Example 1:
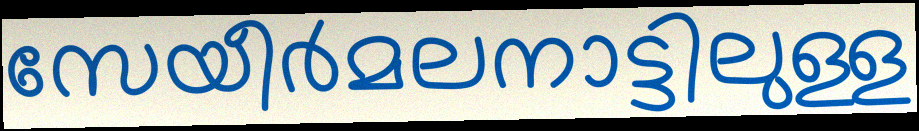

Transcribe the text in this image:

സേയീർമലനാട്ടിലുള്ള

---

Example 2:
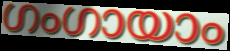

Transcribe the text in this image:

ഗംഗായാം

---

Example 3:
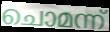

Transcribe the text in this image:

ചൊമന്ന്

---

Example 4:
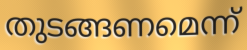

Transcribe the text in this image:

തുടങ്ങണമെന്ന്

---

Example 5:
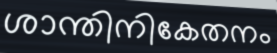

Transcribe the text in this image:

ശാന്തിനികേതനം